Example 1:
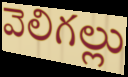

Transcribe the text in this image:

వెలిగల్లు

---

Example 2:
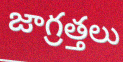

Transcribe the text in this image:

జాగ్రత్తలు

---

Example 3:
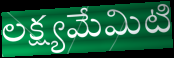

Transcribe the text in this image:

లక్ష్యమేమిటి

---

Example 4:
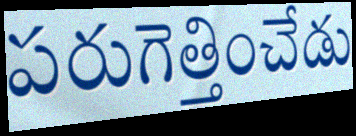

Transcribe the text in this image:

పరుగెత్తించేడు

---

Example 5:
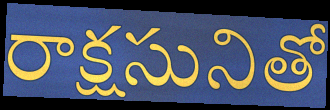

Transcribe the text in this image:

రాక్షసునితో